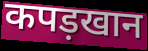
कपड़खान